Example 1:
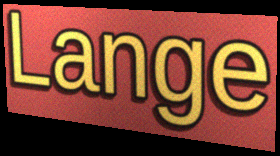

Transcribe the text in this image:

Lange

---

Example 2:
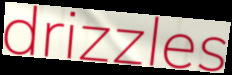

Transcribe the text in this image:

drizzles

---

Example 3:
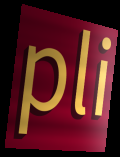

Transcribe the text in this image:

pli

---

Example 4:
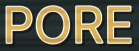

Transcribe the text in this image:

PORE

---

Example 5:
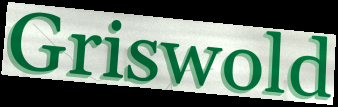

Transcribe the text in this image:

Griswold